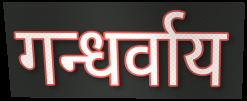
गन्धर्वाय